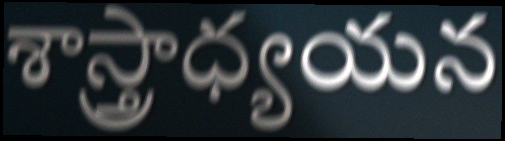
శాస్త్రాధ్యయన